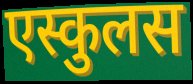
एस्कुलस